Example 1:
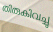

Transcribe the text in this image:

തിരുകിവച്ചു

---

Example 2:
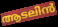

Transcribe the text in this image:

ആടലിൻ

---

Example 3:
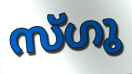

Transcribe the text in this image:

സ്ഗു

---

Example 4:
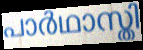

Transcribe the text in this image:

പാർഥാസ്തി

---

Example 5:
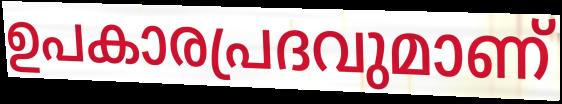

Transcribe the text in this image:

ഉപകാരപ്രദവുമാണ്